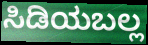
ಸಿಡಿಯಬಲ್ಲ